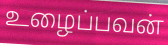
உழைப்பவன்